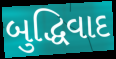
બુદ્ધિવાદ